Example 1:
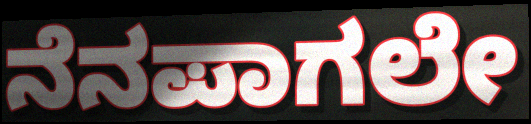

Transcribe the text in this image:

ನೆನಪಾಗಲೇ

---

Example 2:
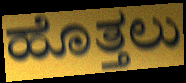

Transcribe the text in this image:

ಹೊತ್ತಲು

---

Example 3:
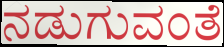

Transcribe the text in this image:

ನಡುಗುವಂತೆ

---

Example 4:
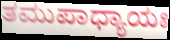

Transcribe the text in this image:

ತಮುಪಾಧ್ಯಾಯಃ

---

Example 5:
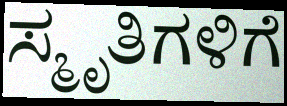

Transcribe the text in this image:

ಸ್ಮೃತಿಗಳಿಗೆ